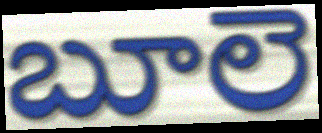
బూలె